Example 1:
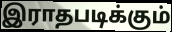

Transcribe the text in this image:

இராதபடிக்கும்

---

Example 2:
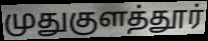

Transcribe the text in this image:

முதுகுளத்தூர்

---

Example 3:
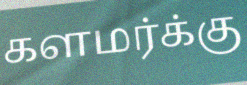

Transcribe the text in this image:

களமர்க்கு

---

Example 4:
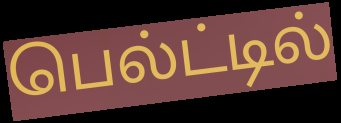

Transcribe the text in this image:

பெல்ட்டில்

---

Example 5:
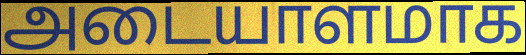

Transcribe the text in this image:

அடையாளமாக